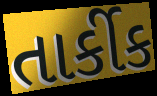
તાર્કીક